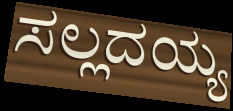
ಸಲ್ಲದಯ್ಯ